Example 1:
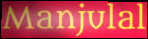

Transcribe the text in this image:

Manjulal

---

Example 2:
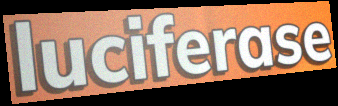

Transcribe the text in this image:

luciferase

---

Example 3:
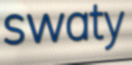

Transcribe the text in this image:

swaty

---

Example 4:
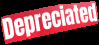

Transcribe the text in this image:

Depreciated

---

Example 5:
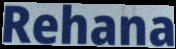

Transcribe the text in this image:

Rehana